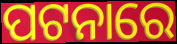
ପଟନାରେ